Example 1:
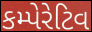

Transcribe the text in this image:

કમ્પેરેટિવ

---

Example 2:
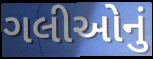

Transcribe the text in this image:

ગલીઓનું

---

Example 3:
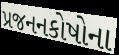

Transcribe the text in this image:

પ્રજનનકોષોના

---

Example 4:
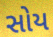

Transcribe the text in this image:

સોય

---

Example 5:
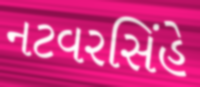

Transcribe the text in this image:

નટવરસિંહે